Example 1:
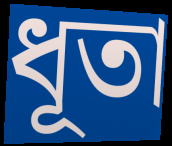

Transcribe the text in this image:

ধূতা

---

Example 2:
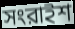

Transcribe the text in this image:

সংরাইশ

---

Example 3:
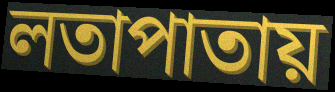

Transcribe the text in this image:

লতাপাতায়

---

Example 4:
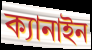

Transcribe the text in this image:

ক্যানাইন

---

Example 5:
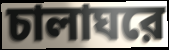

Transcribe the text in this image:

চালাঘরে